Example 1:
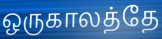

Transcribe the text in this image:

ஒருகாலத்தே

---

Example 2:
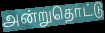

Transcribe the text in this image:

அன்றுதொட்டு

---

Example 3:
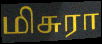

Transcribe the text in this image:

மிசுரா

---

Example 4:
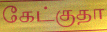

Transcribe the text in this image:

கேட்குதா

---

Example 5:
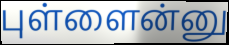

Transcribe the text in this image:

புள்ளைன்னு